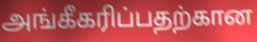
அங்கீகரிப்பதற்கான